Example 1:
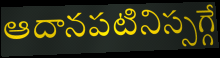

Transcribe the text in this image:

ఆదానపటినిస్సగ్గే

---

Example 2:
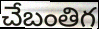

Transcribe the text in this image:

చేబంతిగ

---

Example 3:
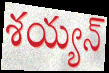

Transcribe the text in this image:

శయ్యన్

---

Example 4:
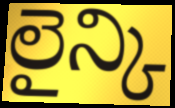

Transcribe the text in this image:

లైన్కి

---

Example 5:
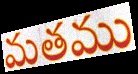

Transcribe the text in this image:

మతము